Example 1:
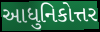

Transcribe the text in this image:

આધુનિકોત્તર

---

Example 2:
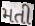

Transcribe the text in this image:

મતી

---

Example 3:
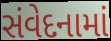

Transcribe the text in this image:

સંવેદનામાં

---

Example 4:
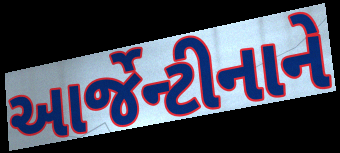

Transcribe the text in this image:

આર્જેન્ટીનાને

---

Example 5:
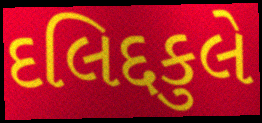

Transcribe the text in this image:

દલિદ્દકુલે